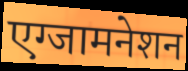
एग्जामनेशन